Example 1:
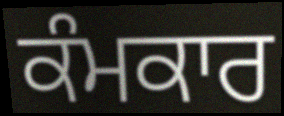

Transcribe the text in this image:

ਕੰਮਕਾਰ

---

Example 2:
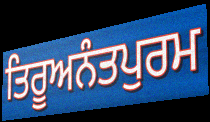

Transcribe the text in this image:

ਤਿਰੂਅਨੰਤਪੁਰਮ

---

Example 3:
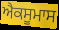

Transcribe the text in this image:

ਐਕਸੂਮਾਸ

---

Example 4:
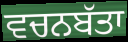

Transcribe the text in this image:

ਵਚਨਬੱਤਾ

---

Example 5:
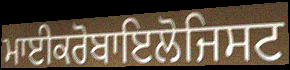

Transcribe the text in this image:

ਮਾਈਕਰੋਬਾਇਲੋਜਿਸਟ